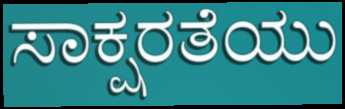
ಸಾಕ್ಷರತೆಯು